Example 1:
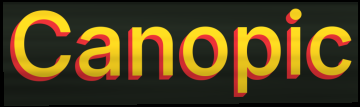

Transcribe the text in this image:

Canopic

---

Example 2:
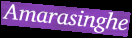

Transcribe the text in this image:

Amarasinghe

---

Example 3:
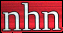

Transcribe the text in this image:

nhn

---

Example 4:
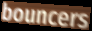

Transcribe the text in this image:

bouncers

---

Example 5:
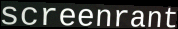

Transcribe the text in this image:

screenrant